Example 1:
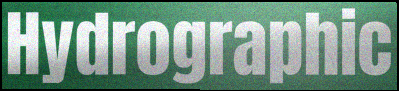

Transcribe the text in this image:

Hydrographic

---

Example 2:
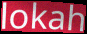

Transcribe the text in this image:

lokah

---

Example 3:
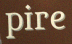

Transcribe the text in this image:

pire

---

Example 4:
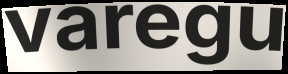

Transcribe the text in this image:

varegu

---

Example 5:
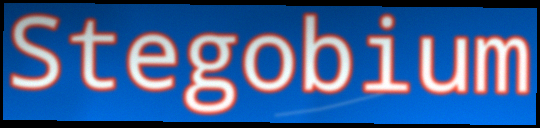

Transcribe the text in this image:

Stegobium